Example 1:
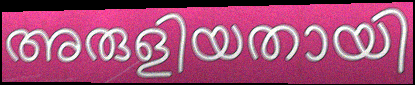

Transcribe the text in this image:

അരുളിയതായി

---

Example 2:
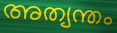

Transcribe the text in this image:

അത്യന്തം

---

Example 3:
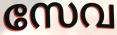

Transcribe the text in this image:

സേവ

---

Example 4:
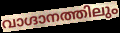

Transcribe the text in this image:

വാഗ്ദാനത്തിലും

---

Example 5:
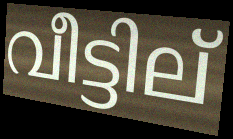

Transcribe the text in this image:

വീട്ടില്